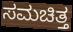
ಸಮಚಿತ್ತ